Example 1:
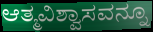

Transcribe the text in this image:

ಆತ್ಮವಿಶ್ವಾಸವನ್ನೂ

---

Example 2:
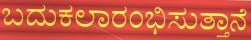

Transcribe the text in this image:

ಬದುಕಲಾರಂಭಿಸುತ್ತಾನೆ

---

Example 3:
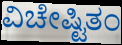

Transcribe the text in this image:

ವಿಚೇಷ್ಟಿತಂ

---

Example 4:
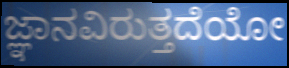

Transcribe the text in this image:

ಜ್ಞಾನವಿರುತ್ತದೆಯೋ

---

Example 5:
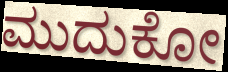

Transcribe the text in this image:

ಮುದುಕೋ